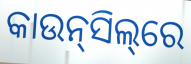
କାଉନ୍‌ସିଲ୍‌ରେ